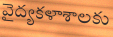
వైద్యకళాశాలకు